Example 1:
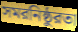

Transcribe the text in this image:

সমরনিষ্ঠুরতা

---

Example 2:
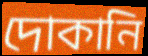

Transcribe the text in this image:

দোকানি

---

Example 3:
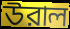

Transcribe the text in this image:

উরাল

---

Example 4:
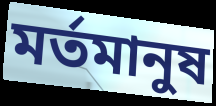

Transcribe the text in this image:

মর্তমানুষ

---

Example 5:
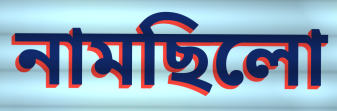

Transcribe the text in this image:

নামছিলো